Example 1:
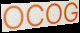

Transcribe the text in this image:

OCOG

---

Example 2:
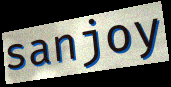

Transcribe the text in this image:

sanjoy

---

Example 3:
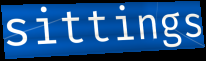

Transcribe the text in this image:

sittings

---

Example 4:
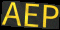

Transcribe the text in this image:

AEP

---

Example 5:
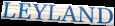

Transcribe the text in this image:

LEYLAND